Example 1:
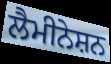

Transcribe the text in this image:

ਲੈਮੀਨੇਸ਼ਨ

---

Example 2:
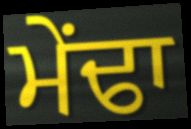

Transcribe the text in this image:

ਮੇਂਢਾ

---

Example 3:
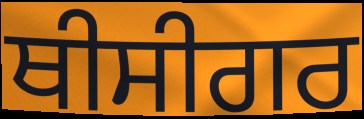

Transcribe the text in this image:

ਥੀਸੀਗਰ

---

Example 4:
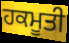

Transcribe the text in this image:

ਹਕਮੂਤੀ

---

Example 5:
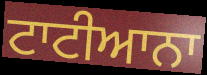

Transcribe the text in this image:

ਟਾਟੀਆਨਾ